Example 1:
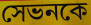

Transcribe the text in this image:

সেভনকে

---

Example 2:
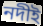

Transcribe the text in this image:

নদীই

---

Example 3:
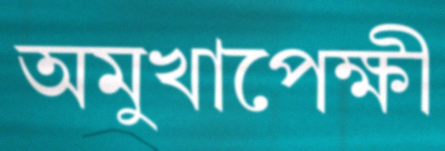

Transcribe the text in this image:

অমুখাপেক্ষী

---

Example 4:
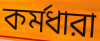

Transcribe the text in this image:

কর্মধারা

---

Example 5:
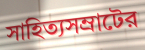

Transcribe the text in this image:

সাহিত্যসম্রাটের